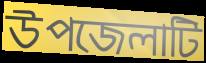
উপজেলাটি